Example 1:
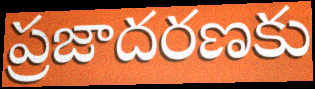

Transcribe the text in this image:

ప్రజాదరణకు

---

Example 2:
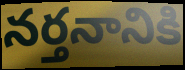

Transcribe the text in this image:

నర్తనానికి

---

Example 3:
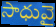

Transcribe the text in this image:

సాధువై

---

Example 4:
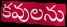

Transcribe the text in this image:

కవులను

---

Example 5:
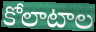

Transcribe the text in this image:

కోలాటాల